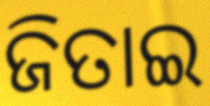
ଜିତାଇ